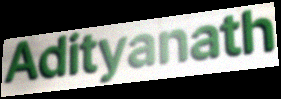
Adityanath